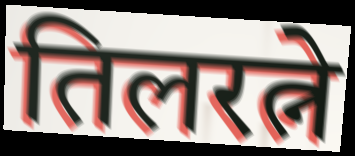
तिलरत्ने